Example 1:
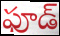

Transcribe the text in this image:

ఫూడ్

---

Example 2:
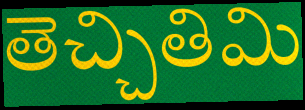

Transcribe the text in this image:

తెచ్చితిమి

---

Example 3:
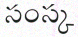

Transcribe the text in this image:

సంస్క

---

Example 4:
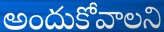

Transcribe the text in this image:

అందుకోవాలని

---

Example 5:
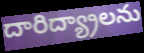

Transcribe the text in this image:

దారిద్య్రాలను